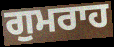
ਗੁਮਰਾਹ